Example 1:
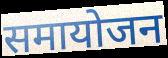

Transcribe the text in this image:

समायोजन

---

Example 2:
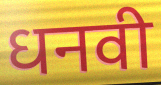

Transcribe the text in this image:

धनवी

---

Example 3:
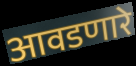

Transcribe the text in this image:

आवडणारे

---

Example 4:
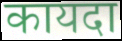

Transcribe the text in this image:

कायदा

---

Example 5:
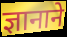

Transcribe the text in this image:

ज्ञानाने